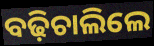
ବଢ଼ିଚାଲିଲେ